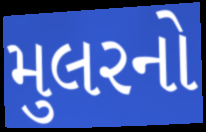
મુલરનો